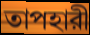
তাপহারী